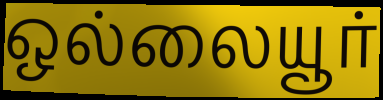
ஒல்லையூர்